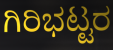
ಗಿರಿಭಟ್ಟರ